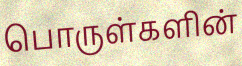
பொருள்களின்